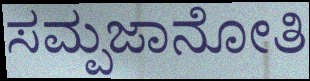
ಸಮ್ಪಜಾನೋತಿ